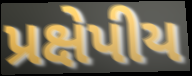
પ્રક્ષેપીય